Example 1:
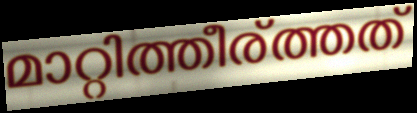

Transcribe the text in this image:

മാറ്റിത്തീര്ത്തത്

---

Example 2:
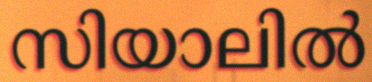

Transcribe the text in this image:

സിയാലിൽ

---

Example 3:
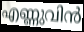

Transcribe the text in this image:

എണ്ണുവിൻ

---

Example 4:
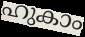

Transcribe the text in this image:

ഹുകാം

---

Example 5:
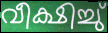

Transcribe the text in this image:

വീക്ഷിച്ചു്